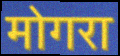
मोगरा